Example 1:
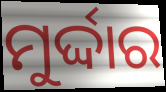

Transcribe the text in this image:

ମୁର୍ଦ୍ଦାର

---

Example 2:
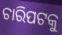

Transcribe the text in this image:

ଚାରିପଟକୁ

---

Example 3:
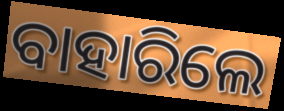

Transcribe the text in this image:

ବାହାରିଲେ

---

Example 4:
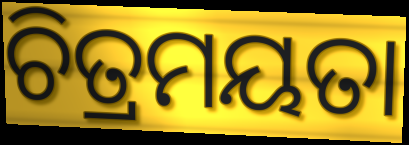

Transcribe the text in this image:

ଚିତ୍ରମୟତା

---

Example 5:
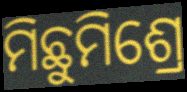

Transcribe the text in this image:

ମିଛୁମିଶ୍ରେ